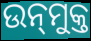
ଉନ୍‍ମୁକ୍ତ